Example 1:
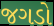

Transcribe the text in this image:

જગડો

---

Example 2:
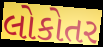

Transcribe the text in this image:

લોકોતર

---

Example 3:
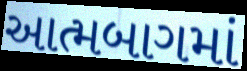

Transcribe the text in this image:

આત્મબાગમાં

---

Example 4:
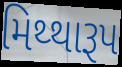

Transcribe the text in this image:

મિથ્થારૂપ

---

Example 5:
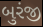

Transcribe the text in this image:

બુરંજી